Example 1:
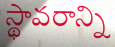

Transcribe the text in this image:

స్థావరాన్ని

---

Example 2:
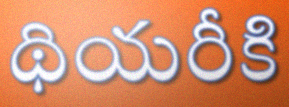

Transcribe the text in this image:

థియరీకి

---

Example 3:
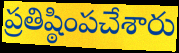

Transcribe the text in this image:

ప్రతిష్ఠింపచేశారు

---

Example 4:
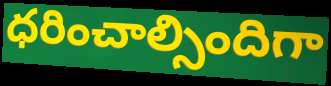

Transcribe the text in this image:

ధరించాల్సిందిగా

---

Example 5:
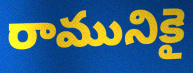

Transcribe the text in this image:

రామునికై